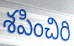
శపించిరి